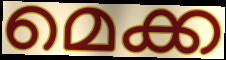
മെക്ക